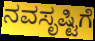
ನವಸೃಷ್ಟಿಗೆ